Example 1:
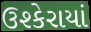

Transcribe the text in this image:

ઉશ્કેરાયાં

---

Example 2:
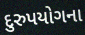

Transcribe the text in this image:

દુરુપયોગના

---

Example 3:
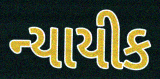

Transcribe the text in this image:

ન્યાયીક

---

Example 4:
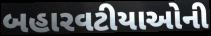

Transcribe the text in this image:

બહારવટીયાઓની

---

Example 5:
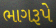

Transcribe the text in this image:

ભાગરૂપે